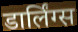
डार्लिंग्स